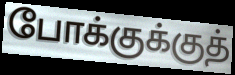
போக்குக்குத்